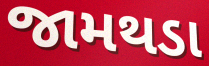
જામથડા